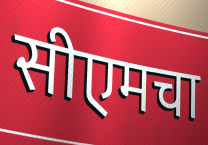
सीएमचा